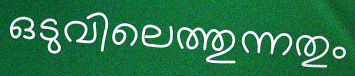
ഒടുവിലെത്തുന്നതും